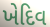
ખેદિવ